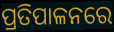
ପ୍ରତିପାଳନରେ